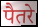
पैतरे